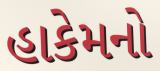
હાકેમનો